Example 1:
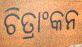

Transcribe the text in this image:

ଚିତ୍ରାଂକନ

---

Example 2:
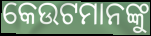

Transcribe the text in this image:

କେଉଟମାନଙ୍କୁ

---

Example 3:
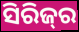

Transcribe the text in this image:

ସିରିଜ୍‌ର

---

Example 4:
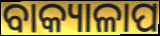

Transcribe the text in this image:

ବାକ୍ୟାଳାପ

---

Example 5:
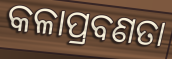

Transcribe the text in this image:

କଳାପ୍ରବଣତା